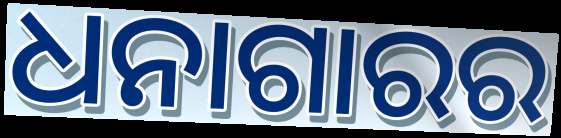
ଧନାଗାରର